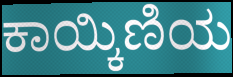
ಕಾಯ್ಕಿಣಿಯ